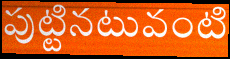
పుట్టినటువంటి